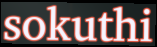
sokuthi